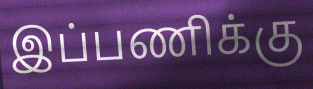
இப்பணிக்கு